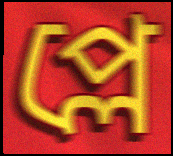
প্লে